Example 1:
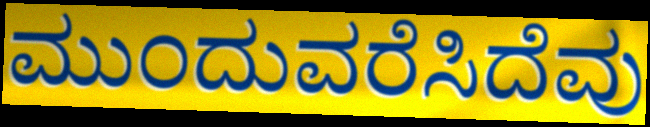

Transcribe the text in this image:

ಮುಂದುವರೆಸಿದೆವು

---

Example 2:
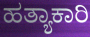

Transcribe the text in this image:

ಹತ್ಯಾಕಾರಿ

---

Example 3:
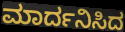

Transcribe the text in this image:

ಮಾರ್ದನಿಸಿದ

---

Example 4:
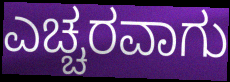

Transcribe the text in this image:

ಎಚ್ಚರವಾಗು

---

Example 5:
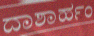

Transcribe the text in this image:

ದಾಶಾರ್ಹಂ